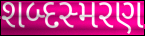
શબ્દસ્મરણ